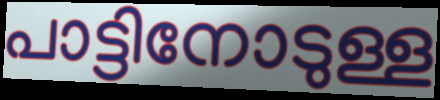
പാട്ടിനോടുള്ള